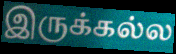
இருக்கல்ல